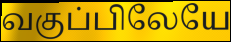
வகுப்பிலேயே